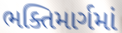
ભક્તિમાર્ગમાં